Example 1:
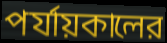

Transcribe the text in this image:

পর্যায়কালের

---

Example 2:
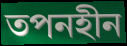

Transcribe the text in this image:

তপনহীন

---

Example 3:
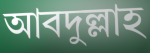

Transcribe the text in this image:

আবদুল্লাহ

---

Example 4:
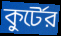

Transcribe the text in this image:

কুর্টের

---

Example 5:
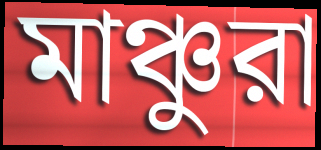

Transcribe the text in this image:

মাঞ্চুরা